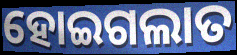
ହୋଇଗଲାତ